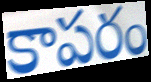
కాపరం